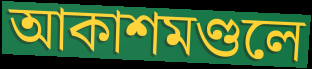
আকাশমণ্ডলে